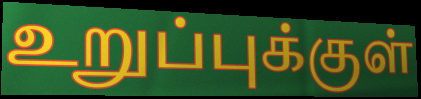
உறுப்புக்குள்